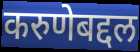
करुणेबद्दल